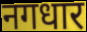
नगधार